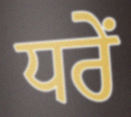
ਧਰੇਂ